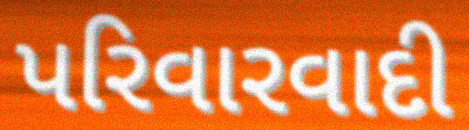
પરિવારવાદી